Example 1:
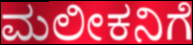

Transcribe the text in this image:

ಮಲೀಕನಿಗೆ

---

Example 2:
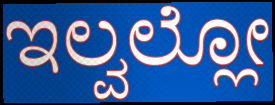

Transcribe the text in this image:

ಇಲ್ವಲ್ಲೋ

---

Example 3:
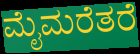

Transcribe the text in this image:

ಮೈಮರೆತರೆ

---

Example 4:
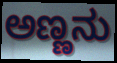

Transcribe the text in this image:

ಅಣ್ಣನು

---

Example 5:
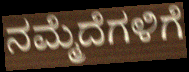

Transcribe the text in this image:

ನಮ್ಮೆದೆಗಳಿಗೆ